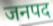
जनपद